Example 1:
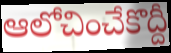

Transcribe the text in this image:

ఆలోచించేకొద్దీ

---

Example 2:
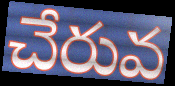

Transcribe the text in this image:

చేరువ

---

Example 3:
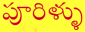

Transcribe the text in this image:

పూరిళ్ళు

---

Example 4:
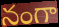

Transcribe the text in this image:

నంగా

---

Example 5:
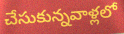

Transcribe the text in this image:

చేసుకున్నవాళ్లలో